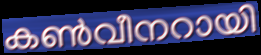
കൺവീനറായി